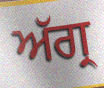
ਅੱਗ੍ਰ